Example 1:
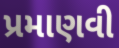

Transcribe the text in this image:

પ્રમાણવી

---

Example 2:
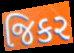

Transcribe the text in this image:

જિકર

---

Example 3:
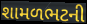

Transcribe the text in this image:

શામળભટની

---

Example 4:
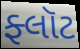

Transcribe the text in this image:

ફ્લૉટ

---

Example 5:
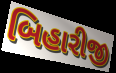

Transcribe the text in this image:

બિહારીજી